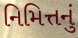
નિમિત્તનું